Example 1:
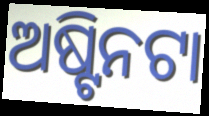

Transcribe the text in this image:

ଅଷ୍ଟିନଟା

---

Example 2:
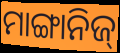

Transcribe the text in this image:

ମାଙ୍ଗାନିଜ୍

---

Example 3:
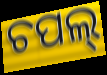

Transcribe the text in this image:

ଚପଲ୍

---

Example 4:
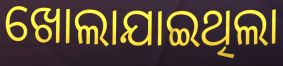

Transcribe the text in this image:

ଖୋଲାଯାଇଥିଲା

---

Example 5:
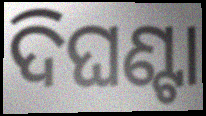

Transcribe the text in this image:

ଦିଘଣ୍ଟା